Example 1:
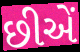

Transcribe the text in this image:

છીએં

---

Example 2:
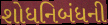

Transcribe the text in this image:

શોધનિબંધની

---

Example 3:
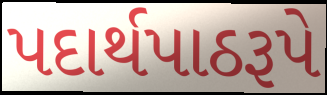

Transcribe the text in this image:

પદાર્થપાઠરૂપે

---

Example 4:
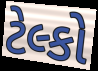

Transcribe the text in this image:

ટેલ્કો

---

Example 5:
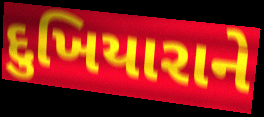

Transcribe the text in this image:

દુખિયારાને